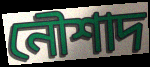
নৌশাদ